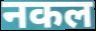
नकल